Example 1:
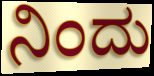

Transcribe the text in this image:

ನಿಂದು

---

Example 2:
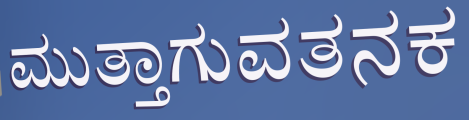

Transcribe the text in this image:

ಮುತ್ತಾಗುವತನಕ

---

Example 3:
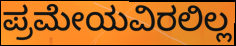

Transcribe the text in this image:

ಪ್ರಮೇಯವಿರಲಿಲ್ಲ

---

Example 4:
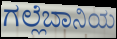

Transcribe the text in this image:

ಗಲ್ಲೆಬಾನಿಯ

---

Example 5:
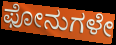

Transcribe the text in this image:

ಫೋನುಗಳೇ